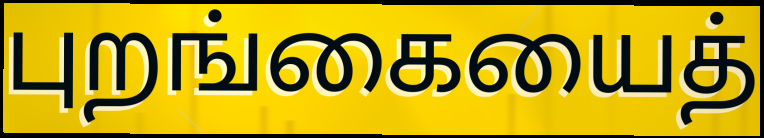
புறங்கையைத்